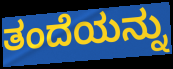
ತಂದೆಯನ್ನು